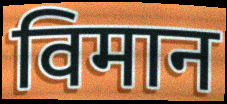
विमान